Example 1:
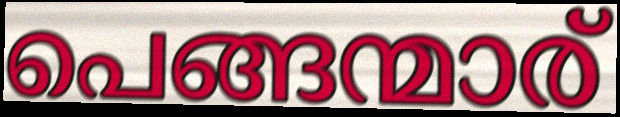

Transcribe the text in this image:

പെങ്ങന്മാര്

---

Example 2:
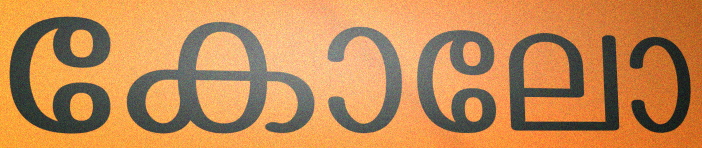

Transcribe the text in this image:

കോലോ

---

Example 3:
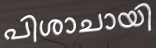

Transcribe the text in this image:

പിശാചായി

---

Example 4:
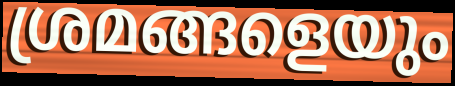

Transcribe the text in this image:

ശ്രമങ്ങളെയും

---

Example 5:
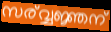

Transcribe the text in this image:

സര്വ്വജ്ഞന്